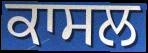
ਕਾਸਲ